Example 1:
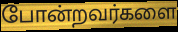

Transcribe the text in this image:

போன்றவர்களை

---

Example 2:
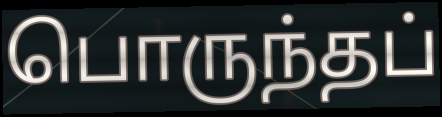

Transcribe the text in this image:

பொருந்தப்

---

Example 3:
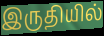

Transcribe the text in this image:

இருதியில்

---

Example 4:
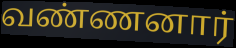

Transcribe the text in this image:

வண்ணனார்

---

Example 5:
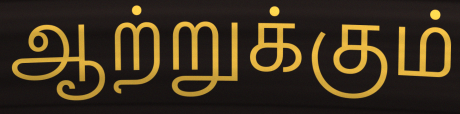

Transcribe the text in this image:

ஆற்றுக்கும்